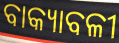
ବାକ୍ୟାବଳୀ